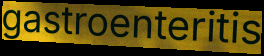
gastroenteritis